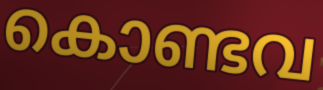
കൊണ്ടവ